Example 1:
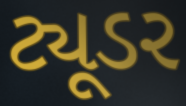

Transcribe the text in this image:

ટ્યૂડર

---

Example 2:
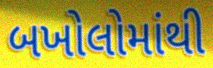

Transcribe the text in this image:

બખોલોમાંથી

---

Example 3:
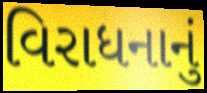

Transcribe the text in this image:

વિરાધનાનું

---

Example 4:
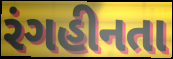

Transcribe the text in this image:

રંગહીનતા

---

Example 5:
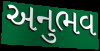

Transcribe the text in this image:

અનુભવ